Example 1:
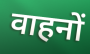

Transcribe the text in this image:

वाहनों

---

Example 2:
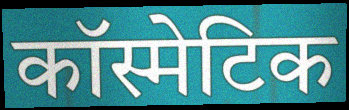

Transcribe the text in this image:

कॉस्मेटिक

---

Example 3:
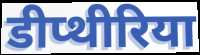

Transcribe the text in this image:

डीप्थीरिया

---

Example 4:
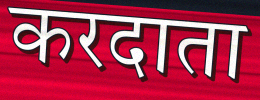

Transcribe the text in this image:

करदाता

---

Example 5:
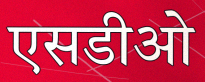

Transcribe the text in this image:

एसडीओ